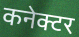
कनेक्टर